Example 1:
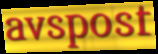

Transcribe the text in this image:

avspost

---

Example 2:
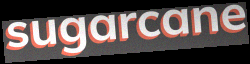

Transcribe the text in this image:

sugarcane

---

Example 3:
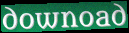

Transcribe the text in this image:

downoad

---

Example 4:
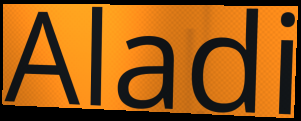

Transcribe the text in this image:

Aladi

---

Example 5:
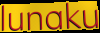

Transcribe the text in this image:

lunaku